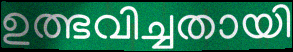
ഉത്ഭവിച്ചതായി